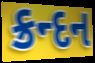
ક્રન્દન